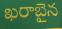
ఖరాబైన